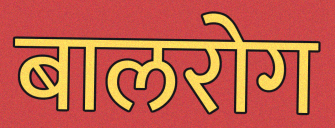
बालरोग